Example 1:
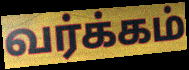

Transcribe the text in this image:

வர்க்கம்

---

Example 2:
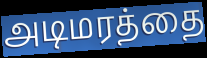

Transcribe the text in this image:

அடிமரத்தை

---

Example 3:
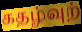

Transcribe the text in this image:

கதழ்வுற்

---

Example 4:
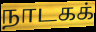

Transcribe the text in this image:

நாடகக்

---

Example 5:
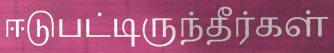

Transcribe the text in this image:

ஈடுபட்டிருந்தீர்கள்